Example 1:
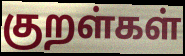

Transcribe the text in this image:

குறள்கள்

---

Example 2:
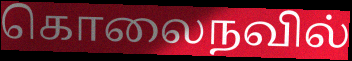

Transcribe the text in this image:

கொலைநவில்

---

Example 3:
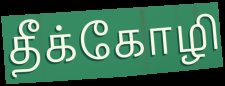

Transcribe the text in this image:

தீக்கோழி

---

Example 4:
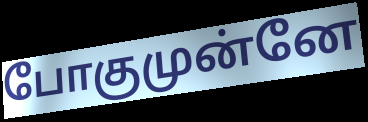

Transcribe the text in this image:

போகுமுன்னே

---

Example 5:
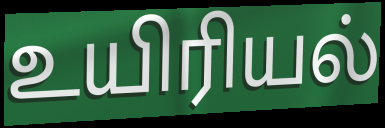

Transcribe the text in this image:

உயிரியல்